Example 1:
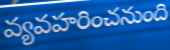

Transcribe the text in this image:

వ్యవహరించనుంది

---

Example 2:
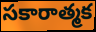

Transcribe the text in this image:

సకారాత్మక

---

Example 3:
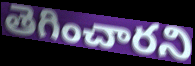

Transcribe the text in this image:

తెగించారని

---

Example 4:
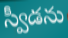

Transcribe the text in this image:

స్వీడను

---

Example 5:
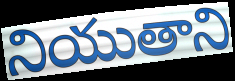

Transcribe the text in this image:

నియుతాని